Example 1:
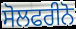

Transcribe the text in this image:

ਸੋਲਫਰੀਨੋ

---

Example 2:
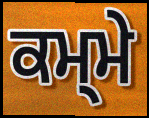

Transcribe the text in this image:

ਕਮ੍ਮੇ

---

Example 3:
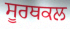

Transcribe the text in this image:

ਸੂਰਥਕਲ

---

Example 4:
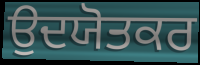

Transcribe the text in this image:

ਉਦਯੋਤਕਰ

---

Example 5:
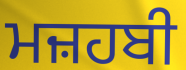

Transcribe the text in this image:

ਮਜ਼ਹਬੀ